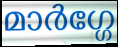
മാർഗ്ഗേ